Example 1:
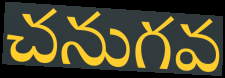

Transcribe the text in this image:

చనుగవ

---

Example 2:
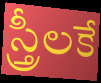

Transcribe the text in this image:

స్త్రీలకే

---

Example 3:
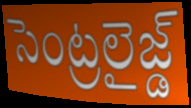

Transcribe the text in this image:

సెంట్రలైజ్డ్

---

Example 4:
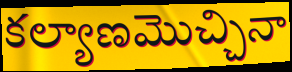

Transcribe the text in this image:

కల్యాణమొచ్చినా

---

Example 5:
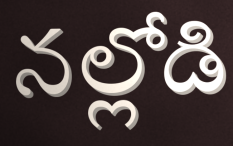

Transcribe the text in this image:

నల్లోడి